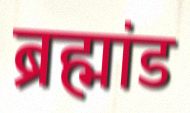
ब्रह्मांड